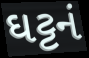
ઘટ્ટનં